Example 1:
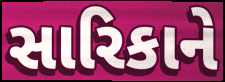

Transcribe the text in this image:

સારિકાને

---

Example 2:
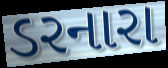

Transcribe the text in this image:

ડરનારા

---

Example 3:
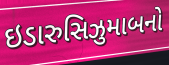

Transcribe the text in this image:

ઇડારુસિઝુમાબનો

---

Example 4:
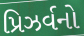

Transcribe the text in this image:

પ્રિઝર્વનો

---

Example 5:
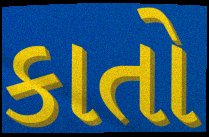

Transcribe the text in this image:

કાતો